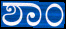
ಶಾಂ